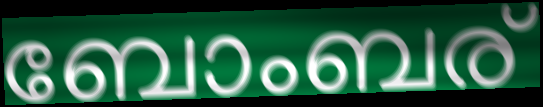
ബോംബര്